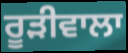
ਰੂਡ਼ੀਵਾਲਾ